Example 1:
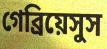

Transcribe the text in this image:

গেব্রিয়েসুস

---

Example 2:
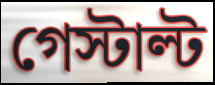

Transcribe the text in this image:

গেস্টাল্ট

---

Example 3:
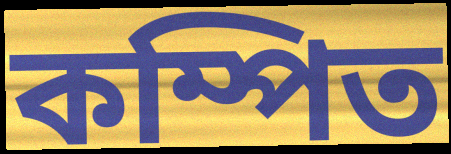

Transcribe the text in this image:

কম্পিত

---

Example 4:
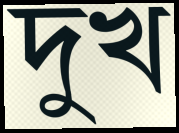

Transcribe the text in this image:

দুখ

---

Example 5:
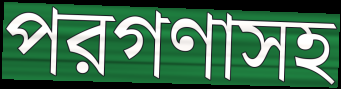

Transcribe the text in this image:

পরগণাসহ